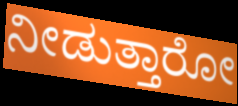
ನೀಡುತ್ತಾರೋ